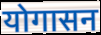
योगासन